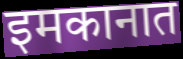
इमकानात